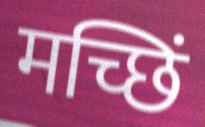
मच्छिं